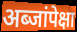
अब्जांपेक्षा